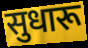
सुधारू